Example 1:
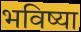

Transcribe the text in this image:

भविष्या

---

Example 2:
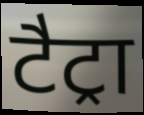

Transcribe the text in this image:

टैट्रा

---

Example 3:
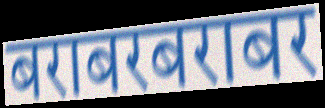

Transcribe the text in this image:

बराबरबराबर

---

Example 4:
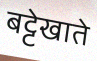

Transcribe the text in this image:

बट्टेखाते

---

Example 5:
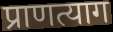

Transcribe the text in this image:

प्राणत्याग